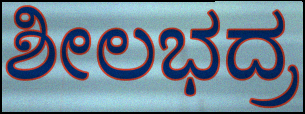
ಶೀಲಭದ್ರ